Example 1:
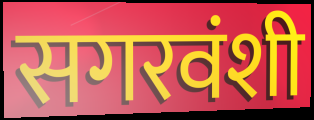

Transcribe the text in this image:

सगरवंशी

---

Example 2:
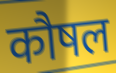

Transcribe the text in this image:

कौषल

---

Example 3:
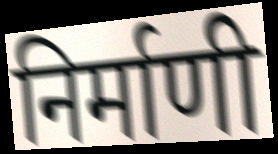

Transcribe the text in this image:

निर्माणी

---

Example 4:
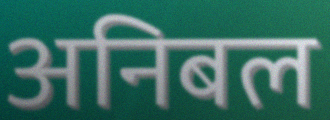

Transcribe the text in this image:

अनिबल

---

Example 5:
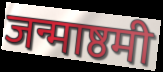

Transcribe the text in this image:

जन्माष्ठमी